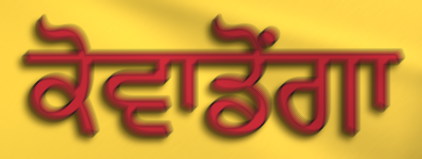
ਕੋਵਾਡੋਂਗਾ